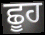
ਛੂਹ